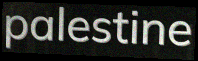
palestine